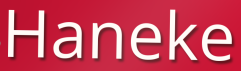
Haneke